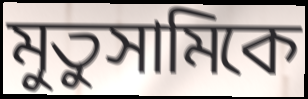
মুতুসামিকে